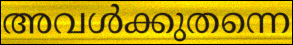
അവൾക്കുതന്നെ